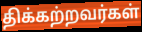
திக்கற்றவர்கள்